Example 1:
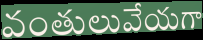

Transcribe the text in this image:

వంతులువేయగా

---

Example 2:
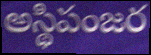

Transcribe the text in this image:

అస్థిపంజర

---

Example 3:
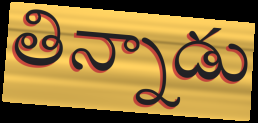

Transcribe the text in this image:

తిన్నాడు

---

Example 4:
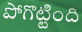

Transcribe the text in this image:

పోగొట్టింది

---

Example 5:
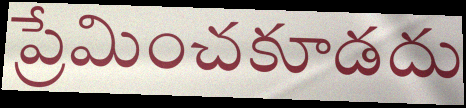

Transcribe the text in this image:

ప్రేమించకూడదు